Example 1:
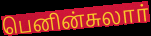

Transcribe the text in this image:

பெனின்சுலார்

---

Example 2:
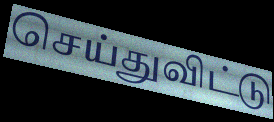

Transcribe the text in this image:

செய்துவிட்டு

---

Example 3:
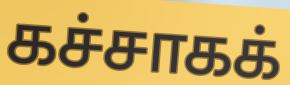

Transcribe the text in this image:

கச்சாகக்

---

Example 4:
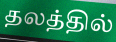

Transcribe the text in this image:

தலத்தில்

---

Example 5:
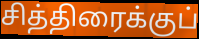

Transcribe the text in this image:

சித்திரைக்குப்